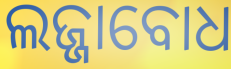
ଲଜ୍ଜାବୋଧ